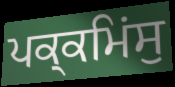
ਪਕ੍ਕਮਿਂਸੁ